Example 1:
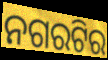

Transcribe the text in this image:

ନଗରଟିର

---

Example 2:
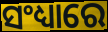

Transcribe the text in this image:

ସଂଧ୍ୟାରେ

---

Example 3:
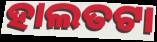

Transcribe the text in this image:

ହାଲତଟା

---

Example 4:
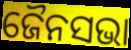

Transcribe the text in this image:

ଜୈନସଭା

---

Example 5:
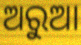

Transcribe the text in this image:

ଅରୁଆ